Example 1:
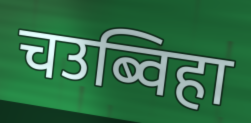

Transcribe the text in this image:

चउब्विहा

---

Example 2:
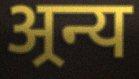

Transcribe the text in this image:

अ्रन्य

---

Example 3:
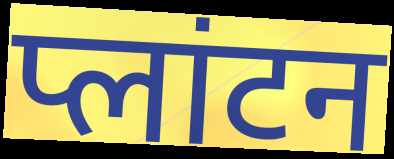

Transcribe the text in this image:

प्लांटन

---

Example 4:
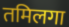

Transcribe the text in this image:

तमिलगा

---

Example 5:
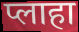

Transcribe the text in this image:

प्लाहा